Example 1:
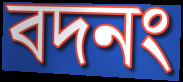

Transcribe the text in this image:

বদনং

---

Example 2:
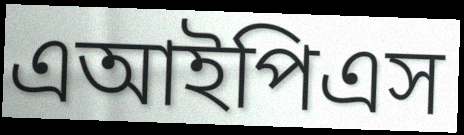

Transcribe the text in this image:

এআইপিএস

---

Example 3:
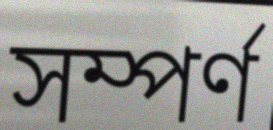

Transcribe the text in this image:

সম্পর্ণ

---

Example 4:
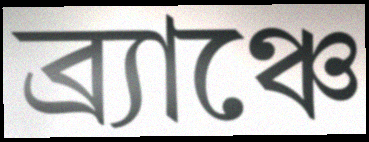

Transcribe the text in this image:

ব্র্যাঞ্চে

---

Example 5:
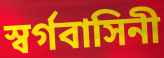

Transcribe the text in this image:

স্বর্গবাসিনী